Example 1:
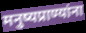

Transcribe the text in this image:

मनुष्यप्राण्यांना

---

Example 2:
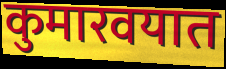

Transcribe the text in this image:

कुमारवयात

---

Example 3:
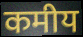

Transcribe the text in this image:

कमीय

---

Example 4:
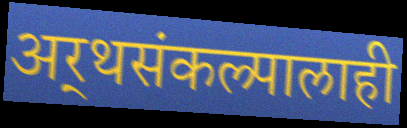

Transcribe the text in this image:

अर्थसंकल्पालाही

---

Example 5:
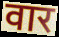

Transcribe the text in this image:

वार